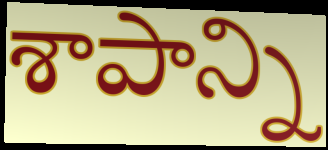
శాపాన్ని